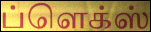
ப்ளெக்ஸ்